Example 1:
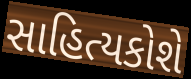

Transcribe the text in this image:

સાહિત્યકોશે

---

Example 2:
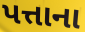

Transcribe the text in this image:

પત્તાના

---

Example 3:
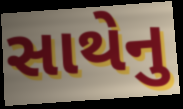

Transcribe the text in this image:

સાથેનુ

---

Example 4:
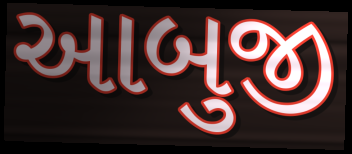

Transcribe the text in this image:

આબુજી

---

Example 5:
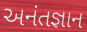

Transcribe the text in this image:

અનંતજ્ઞાન